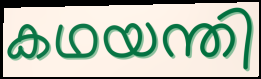
കഥയന്തി